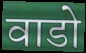
वाडो